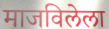
माजविलेला